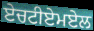
ਏਚਟੀਏਮਏਲ